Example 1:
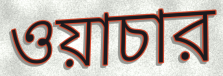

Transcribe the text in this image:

ওয়াচার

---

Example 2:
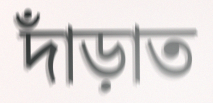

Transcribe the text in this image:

দাঁড়াত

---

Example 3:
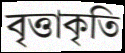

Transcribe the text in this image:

বৃত্তাকৃতি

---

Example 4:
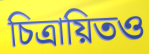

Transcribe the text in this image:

চিত্রায়িতও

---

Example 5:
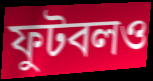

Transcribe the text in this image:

ফুটবলও